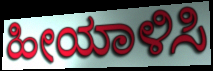
ಹೀಯಾಳಿಸಿ